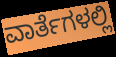
ವಾರ್ತೆಗಳಲ್ಲಿ